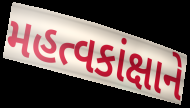
મહત્વકાંક્ષાને